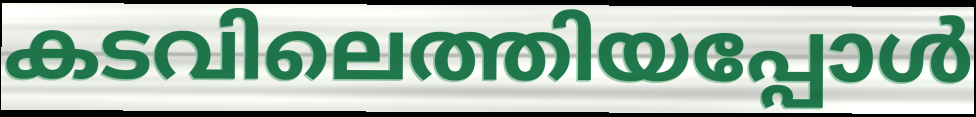
കടവിലെത്തിയപ്പോൾ